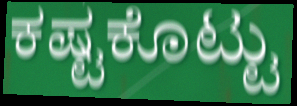
ಕಷ್ಟಕೊಟ್ಟು